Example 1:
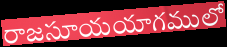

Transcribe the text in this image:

రాజసూయయాగములో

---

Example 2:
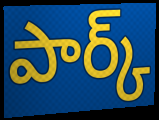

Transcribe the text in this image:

పార్క్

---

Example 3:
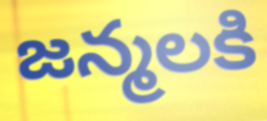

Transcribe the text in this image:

జన్మలకి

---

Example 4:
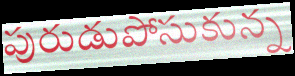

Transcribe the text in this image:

పురుడుపోసుకున్న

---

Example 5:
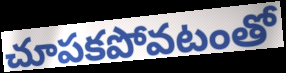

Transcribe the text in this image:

చూపకపోవటంతో